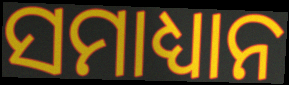
ସମାଧ୍ୟାନ